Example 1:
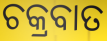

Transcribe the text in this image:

ଚକ୍ରବାତ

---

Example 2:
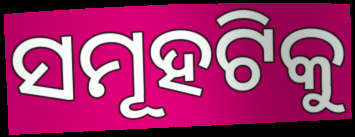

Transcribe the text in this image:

ସମୂହଟିକୁ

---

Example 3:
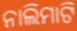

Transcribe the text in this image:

ନାଲିମାଟି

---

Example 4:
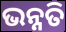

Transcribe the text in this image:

ଭନ୍ନତି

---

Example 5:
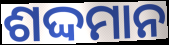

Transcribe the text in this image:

ଶଦ୍ଦମାନ